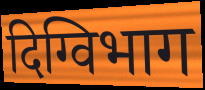
दिग्विभाग